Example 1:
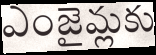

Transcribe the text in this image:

ఎంజైమ్లకు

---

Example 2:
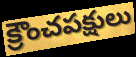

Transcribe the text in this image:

క్రౌంచపక్షులు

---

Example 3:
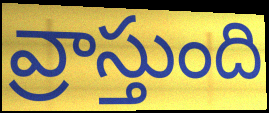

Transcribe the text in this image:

వ్రాస్తుంది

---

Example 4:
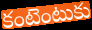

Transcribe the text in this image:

కంటెంటుకు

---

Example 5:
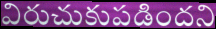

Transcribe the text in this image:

విరుచుకుపడిందని